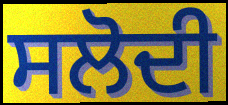
ਸਲੋਦੀ